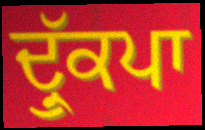
ਦ੍ਰੁੱਕਪਾ